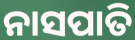
ନାସପାତି